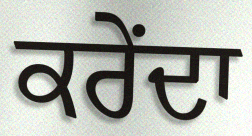
ਕਰੇਂਦਾ